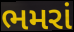
ભમરાં